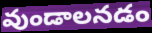
వుండాలనడం